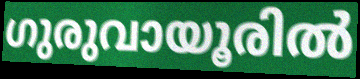
ഗുരുവായൂരിൽ